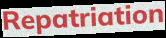
Repatriation